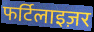
फर्टिलाइज़र